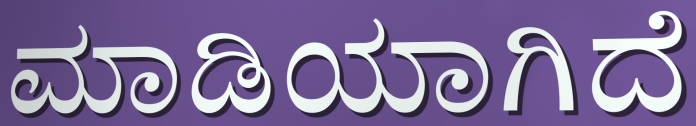
ಮಾಡಿಯಾಗಿದೆ